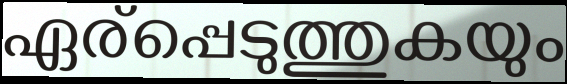
ഏര്പ്പെടുത്തുകയും